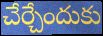
చేర్చేందుకు